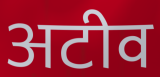
अटीव